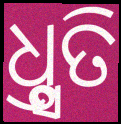
ଧ୍ତ୍ସତି